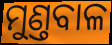
ମୁଣ୍ତବାଳ